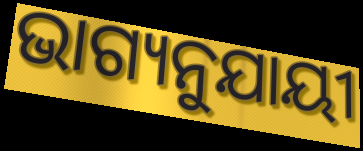
ଭାଗ୍ୟନୁଯାୟୀ